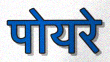
पोयरे